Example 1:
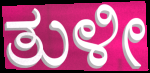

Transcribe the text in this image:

ತುಳೀ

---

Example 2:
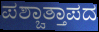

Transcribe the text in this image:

ಪಶ್ಚಾತ್ತಾಪದ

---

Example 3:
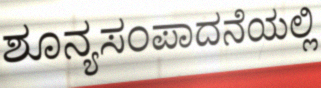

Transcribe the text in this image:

ಶೂನ್ಯಸಂಪಾದನೆಯಲ್ಲಿ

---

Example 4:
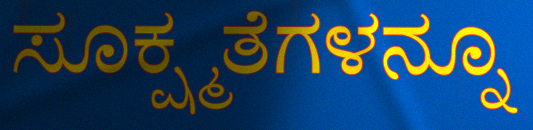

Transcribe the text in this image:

ಸೂಕ್ಷ್ಮತೆಗಳನ್ನೂ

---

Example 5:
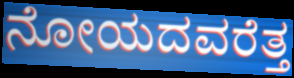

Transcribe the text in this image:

ನೋಯದವರೆತ್ತ